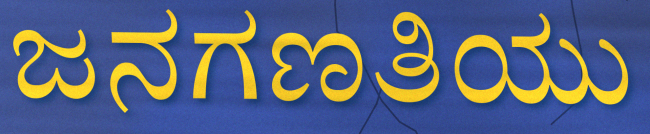
ಜನಗಣತಿಯು